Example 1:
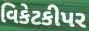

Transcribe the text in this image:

વિકેટકીપર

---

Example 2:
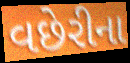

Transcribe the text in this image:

વછેરીના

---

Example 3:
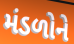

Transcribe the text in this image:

મંડળોને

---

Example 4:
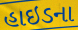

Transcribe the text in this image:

હાઇડના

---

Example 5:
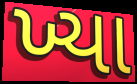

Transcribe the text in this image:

ખ્યા